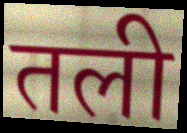
तली